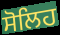
ਸੋਲਿਹ